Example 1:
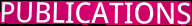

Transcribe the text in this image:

PUBLICATIONS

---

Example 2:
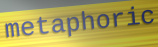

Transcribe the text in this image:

metaphoric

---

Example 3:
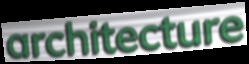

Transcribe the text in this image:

architecture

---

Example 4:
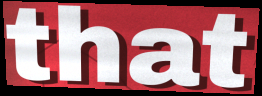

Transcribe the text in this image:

that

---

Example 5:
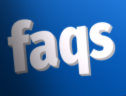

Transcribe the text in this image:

faqs